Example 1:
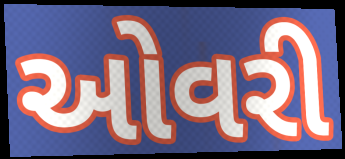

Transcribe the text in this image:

ઓવરી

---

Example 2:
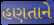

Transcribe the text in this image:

હણતાને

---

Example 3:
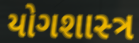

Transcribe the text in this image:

યોગશાસ્‍ત્ર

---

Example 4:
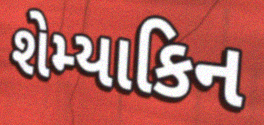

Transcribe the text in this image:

શેમ્યાકિન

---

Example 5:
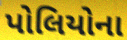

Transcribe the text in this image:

પોલિયોના